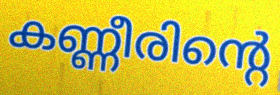
കണ്ണീരിന്റെ